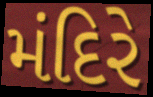
મંદિરે